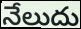
నేలుదు